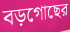
বড়গোছের